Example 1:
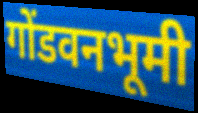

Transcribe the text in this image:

गोंडवनभूमी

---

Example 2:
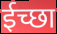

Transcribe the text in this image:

ईच्छा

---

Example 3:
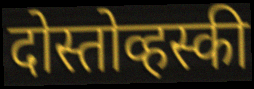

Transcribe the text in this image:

दोस्तोव्हस्की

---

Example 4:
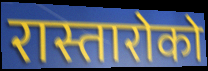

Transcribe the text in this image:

रास्तारोको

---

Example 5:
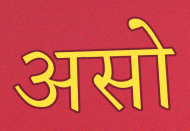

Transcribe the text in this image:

असो